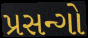
પ્રસન્ગો